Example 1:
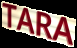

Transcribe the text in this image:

TARA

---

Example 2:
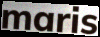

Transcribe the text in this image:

maris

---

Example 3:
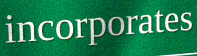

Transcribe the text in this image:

incorporates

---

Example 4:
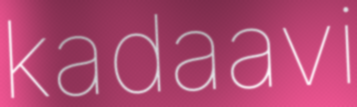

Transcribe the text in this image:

kadaavi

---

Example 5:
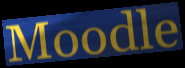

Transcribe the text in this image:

Moodle